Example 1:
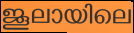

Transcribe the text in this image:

ജൂലായിലെ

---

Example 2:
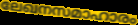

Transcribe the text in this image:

ലേഖനസമാഹാരം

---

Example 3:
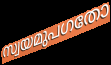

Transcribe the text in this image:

സ്വയമുപഗതോ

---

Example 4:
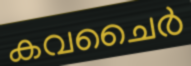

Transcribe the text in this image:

കവചൈർ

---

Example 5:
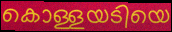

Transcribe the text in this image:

കൊള്ളയടിയെ